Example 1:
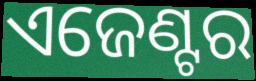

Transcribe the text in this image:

ଏଜେଣ୍ଟର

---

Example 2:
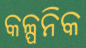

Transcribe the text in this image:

କଳ୍ପନିକ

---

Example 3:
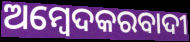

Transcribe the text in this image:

ଅମ୍ବେଦକରବାଦୀ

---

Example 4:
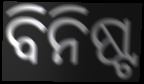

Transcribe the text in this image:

ବିନିଷ୍ଟ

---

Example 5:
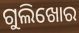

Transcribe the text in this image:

ଗୁଲିଖୋର